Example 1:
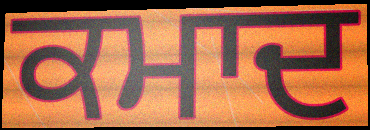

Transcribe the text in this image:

ਕਮਾਦ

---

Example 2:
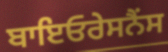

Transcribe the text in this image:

ਬਾਇਓਰੇਸਨੈਂਸ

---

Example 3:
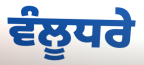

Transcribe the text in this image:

ਵੰਲੂਧਰੇ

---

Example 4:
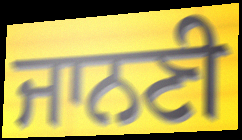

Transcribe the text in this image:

ਜਾਨਣੀ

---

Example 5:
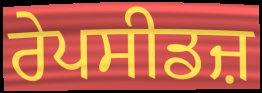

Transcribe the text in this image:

ਰੇਪਸੀਡਜ਼